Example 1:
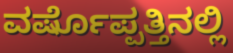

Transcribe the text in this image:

ವರ್ಷೊಪ್ಪತ್ತಿನಲ್ಲಿ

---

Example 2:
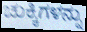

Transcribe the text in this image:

ಚುಕ್ಕಿಗಳನ್ನು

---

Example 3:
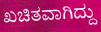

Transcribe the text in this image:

ಖಚಿತವಾಗಿದ್ದು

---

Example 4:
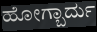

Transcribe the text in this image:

ಹೋಗ್ಬಾರ್ದು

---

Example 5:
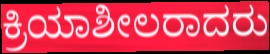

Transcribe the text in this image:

ಕ್ರಿಯಾಶೀಲರಾದರು